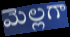
మెల్లగా